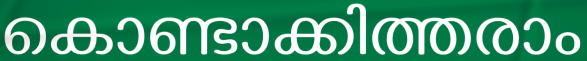
കൊണ്ടാക്കിത്തരാം